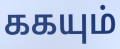
ககயும்